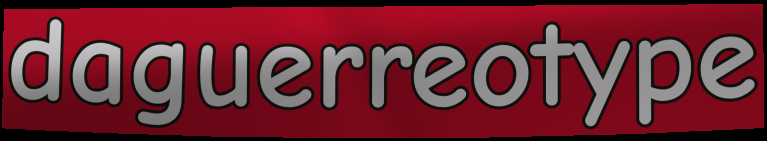
daguerreotype